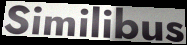
Similibus